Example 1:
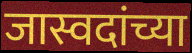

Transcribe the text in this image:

जास्वदांच्या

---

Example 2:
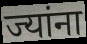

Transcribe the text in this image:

ज्यांना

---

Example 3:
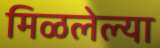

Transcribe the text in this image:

मिळलेल्या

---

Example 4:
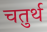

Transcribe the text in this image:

चतुर्थ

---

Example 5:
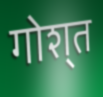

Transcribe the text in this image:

गोश्त